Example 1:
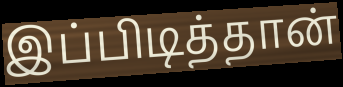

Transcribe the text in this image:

இப்பிடித்தான்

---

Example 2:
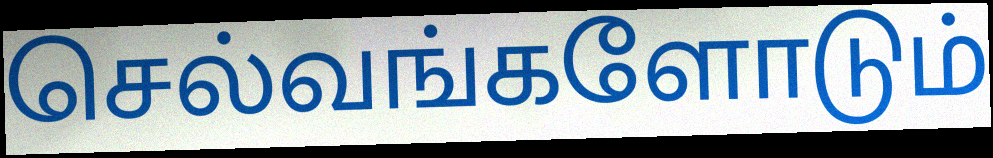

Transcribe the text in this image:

செல்வங்களோடும்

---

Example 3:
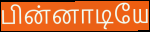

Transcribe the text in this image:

பின்னாடியே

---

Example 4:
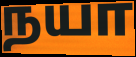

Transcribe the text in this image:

நயா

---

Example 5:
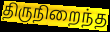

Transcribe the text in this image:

திருநிறைந்த